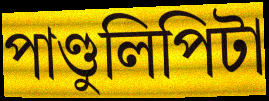
পাণ্ডুলিপিটা